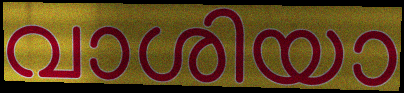
വാശിയാ